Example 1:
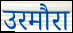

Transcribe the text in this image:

उरमौरा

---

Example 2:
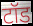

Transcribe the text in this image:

टॉड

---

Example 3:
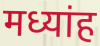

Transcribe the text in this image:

मध्यांह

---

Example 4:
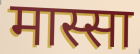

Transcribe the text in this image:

मास्सा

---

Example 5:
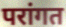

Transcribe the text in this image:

परांगत